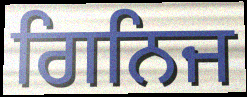
ਗਿਨਿਜ